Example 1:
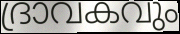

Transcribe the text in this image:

ദ്രാവകവും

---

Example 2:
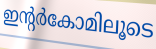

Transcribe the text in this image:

ഇന്റർകോമിലൂടെ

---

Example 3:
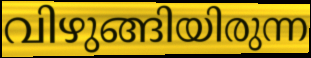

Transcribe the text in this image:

വിഴുങ്ങിയിരുന്ന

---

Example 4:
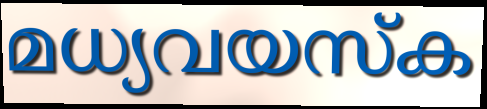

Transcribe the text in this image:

മധ്യവയസ്ക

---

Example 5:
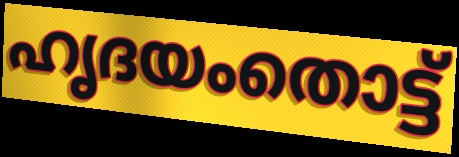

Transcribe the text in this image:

ഹൃദയംതൊട്ട്